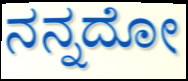
ನನ್ನದೋ